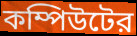
কম্পিউটের